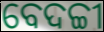
ବେଦଚ୍ଚୀ